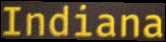
Indiana